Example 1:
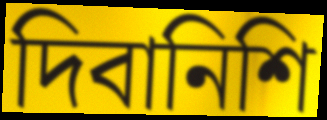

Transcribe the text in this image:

দিবানিশি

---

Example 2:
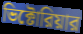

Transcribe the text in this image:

ভিক্টোরিয়ার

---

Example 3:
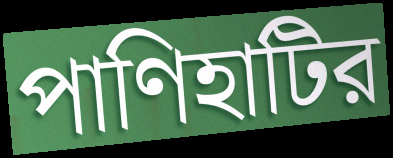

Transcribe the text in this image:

পাণিহাটির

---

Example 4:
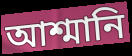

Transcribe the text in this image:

আশ্মানি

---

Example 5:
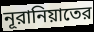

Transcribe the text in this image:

নূরানিয়াতের